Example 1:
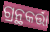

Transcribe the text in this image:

ଗ୍ରନ୍ଥକର୍ତ୍ତା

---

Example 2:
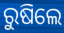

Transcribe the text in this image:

ରୁଷିଲେ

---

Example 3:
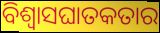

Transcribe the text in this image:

ବିଶ୍ଵାସଘାତକତାର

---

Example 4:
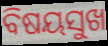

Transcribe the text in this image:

ବିଷୟସୁଖ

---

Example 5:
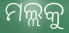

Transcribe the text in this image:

ମଲ୍ଲକୁ